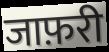
जाफ़री